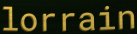
lorrain